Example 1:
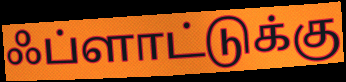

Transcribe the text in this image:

ஃப்ளாட்டுக்கு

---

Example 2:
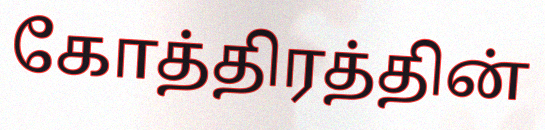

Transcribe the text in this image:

கோத்திரத்தின்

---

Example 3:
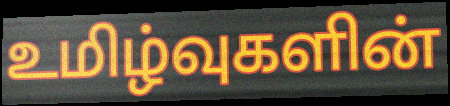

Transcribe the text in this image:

உமிழ்வுகளின்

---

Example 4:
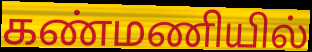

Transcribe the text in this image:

கண்மணியில்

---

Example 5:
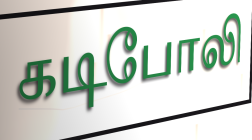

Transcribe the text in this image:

கடிபோலி